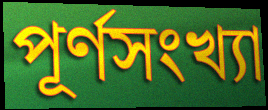
পূর্ণসংখ্যা